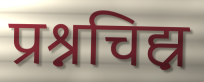
प्रश्नचिह्न